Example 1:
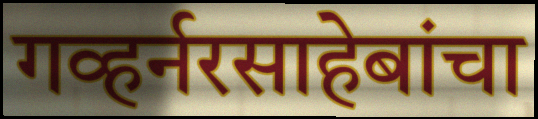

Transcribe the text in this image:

गव्हर्नरसाहेबांचा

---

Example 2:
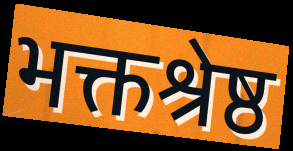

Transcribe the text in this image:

भक्तश्रेष्ठ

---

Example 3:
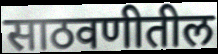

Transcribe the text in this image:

साठवणीतील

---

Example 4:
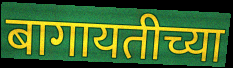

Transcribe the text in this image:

बागायतीच्या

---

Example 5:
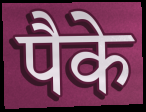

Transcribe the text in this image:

पैके